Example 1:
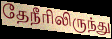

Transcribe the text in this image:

தேநீரிலிருந்து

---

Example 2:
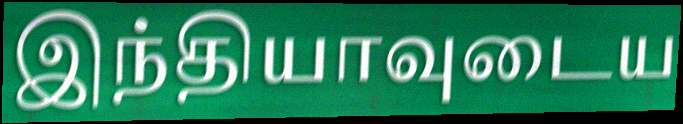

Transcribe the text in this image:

இந்தியாவுடைய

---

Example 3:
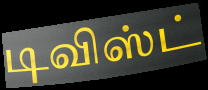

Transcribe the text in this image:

டிவிஸ்ட்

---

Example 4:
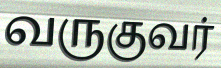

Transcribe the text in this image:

வருகுவர்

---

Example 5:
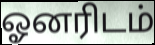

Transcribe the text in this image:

ஓனரிடம்